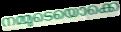
നമ്മുടെയൊക്കെ